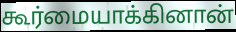
கூர்மையாக்கினான்